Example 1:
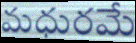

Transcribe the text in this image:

మధురమే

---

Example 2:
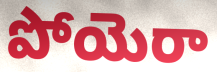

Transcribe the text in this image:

పోయెరా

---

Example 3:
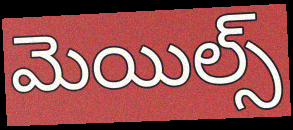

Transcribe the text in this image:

మెయిల్స్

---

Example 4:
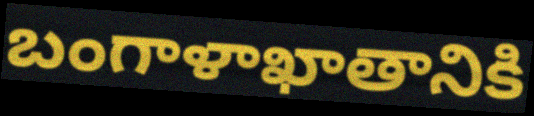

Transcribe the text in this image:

బంగాళాఖాతానికి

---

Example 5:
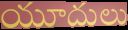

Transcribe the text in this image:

యూదులు